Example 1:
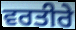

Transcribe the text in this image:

ਵਰਤੀਰੇ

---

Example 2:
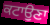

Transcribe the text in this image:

ਕਟਾਉਣਾ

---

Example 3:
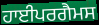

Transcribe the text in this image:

ਹਾਈਪਰਗੈਮਸ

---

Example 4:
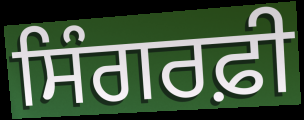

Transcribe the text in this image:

ਸਿੰਗਰਫ਼ੀ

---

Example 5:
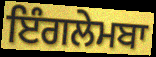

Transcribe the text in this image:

ਇੰਗਲੇਮਬਾ